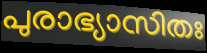
പുരാഭ്യാസിതഃ